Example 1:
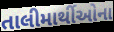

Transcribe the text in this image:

તાલીમાર્થીઓના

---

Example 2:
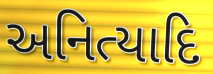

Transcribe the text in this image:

અનિત્યાદિ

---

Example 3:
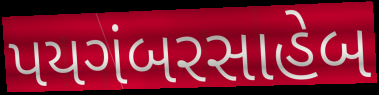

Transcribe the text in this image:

પયગંબરસાહેબ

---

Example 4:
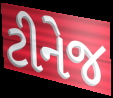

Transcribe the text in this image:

ટીનેજ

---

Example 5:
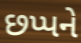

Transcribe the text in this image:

છપ્પને